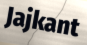
Jajkant